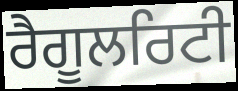
ਰੈਗੂਲਰਿਟੀ